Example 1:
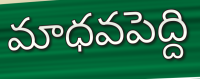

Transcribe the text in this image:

మాధవపెద్ది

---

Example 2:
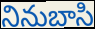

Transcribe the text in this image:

నినుబాసి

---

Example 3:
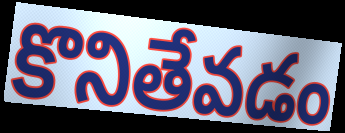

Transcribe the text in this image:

కొనితేవడం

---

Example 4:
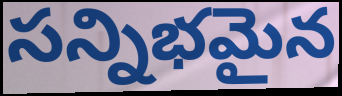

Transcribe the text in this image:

సన్నిభమైన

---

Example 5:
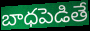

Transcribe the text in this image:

బాధపెడితే